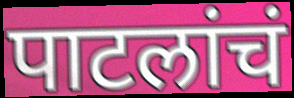
पाटलांचं